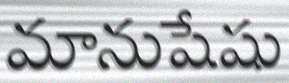
మానుషేషు